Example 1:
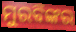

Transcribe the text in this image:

ମୁରବିଙ୍କର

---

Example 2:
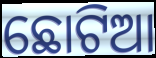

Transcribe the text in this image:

ଛୋଟିଆ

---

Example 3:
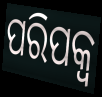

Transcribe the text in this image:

ପରିପକ୍ବ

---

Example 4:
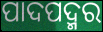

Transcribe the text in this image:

ପାଦପଦ୍ମର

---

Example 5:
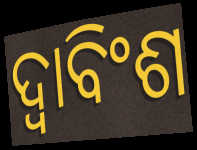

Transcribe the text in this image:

ଦ୍ୱାବିଂଶ